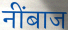
नींबाज